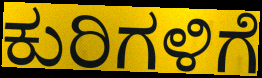
ಕುರಿಗಳಿಗೆ